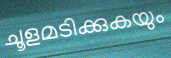
ചൂളമടിക്കുകയും